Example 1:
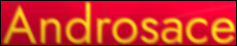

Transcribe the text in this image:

Androsace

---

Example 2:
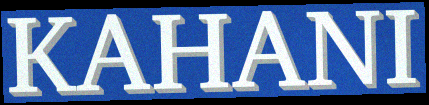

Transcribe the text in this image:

KAHANI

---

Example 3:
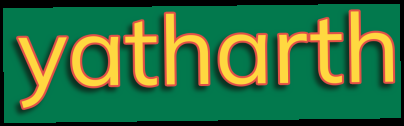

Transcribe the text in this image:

yatharth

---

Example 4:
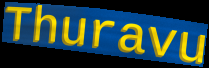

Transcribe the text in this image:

Thuravu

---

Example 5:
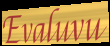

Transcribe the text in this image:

Evaluvu